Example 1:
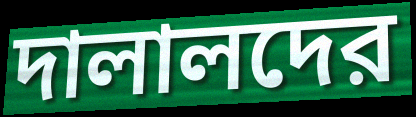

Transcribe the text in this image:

দালালদের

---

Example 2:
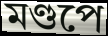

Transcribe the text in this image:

মণ্ডপে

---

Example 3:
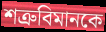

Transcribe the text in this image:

শত্রুবিমানকে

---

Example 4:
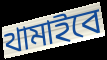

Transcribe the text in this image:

থামাইবে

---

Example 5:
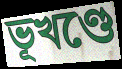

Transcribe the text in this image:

ভূখণ্ডে